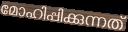
മോഹിപ്പിക്കുന്നത്